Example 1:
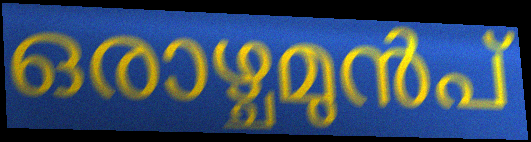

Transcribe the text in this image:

ഒരാഴ്ചമുൻപ്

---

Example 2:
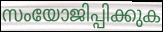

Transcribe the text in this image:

സംയോജിപ്പിക്കുക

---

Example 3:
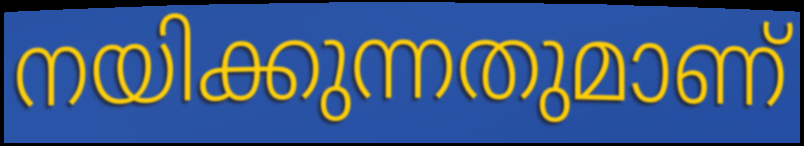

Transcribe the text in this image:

നയിക്കുന്നതുമാണ്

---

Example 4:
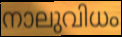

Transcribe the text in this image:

നാലുവിധം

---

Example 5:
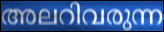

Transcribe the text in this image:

അലറിവരുന്ന